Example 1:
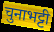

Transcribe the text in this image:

चुनाभट्टी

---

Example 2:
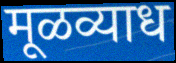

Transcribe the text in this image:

मूळव्याध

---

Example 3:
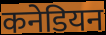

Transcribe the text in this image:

कनेडियन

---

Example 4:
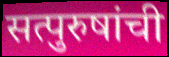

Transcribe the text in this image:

सत्पुरुषांची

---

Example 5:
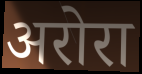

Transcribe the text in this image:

अरोरा